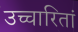
उच्चारितां